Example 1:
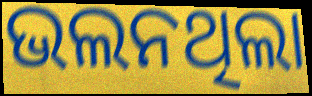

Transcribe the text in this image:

ଭଲନଥିଲା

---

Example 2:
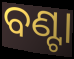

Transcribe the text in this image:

ବଣ୍ଟା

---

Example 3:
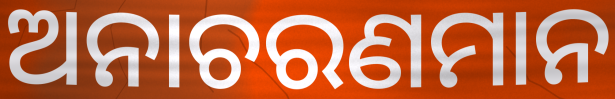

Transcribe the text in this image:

ଅନାଚରଣମାନ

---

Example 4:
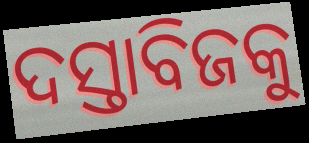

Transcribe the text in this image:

ଦସ୍ତାବିଜକୁ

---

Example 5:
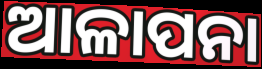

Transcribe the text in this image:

ଆଳାପନା